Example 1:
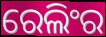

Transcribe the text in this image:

ରେଲିଂର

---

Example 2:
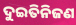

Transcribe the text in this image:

ଦୁଇତିନିଜଣ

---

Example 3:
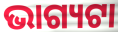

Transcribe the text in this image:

ଭାଗ୍ୟଟା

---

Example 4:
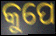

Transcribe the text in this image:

କୁପେ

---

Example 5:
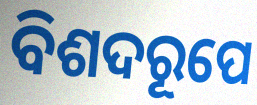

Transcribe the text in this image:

ବିଶଦରୂପେ